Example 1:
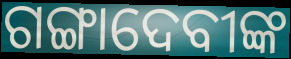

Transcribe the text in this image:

ଗଙ୍ଗାଦେବୀଙ୍କ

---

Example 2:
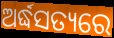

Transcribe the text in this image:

ଅର୍ଦ୍ଧସତ୍ୟରେ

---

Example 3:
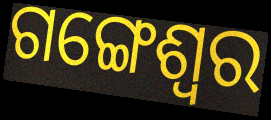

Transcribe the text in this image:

ଗଙ୍ଗେଶ୍ଵର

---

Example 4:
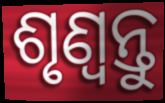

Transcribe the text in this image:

ଶୃଣ୍ଵନ୍ତୁ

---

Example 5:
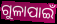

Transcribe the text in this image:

ଗୁଳାପାଇଁ